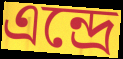
এন্দ্ৰে